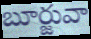
బూర్జువా